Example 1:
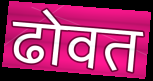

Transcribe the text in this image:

ढोवत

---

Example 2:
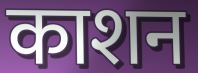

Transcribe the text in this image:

काशन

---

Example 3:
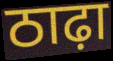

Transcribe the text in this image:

ठाढ़ा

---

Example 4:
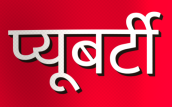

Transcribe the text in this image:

प्‍यूबर्टी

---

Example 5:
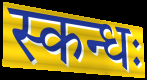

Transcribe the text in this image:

स्कन्धः